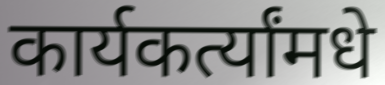
कार्यकर्त्यांमधे